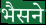
भैसने